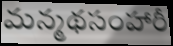
మన్మథసంహారీ